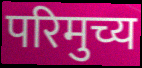
परिमुच्य